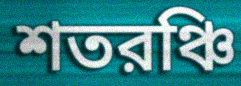
শতরঞ্চি